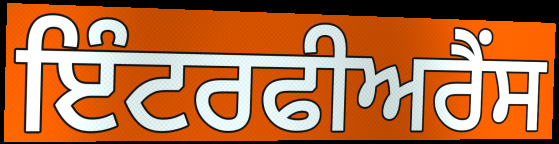
ਇੰਟਰਫੀਅਰੈਂਸ